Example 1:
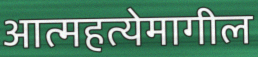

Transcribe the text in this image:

आत्महत्येमागील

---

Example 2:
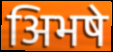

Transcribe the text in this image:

अिभषे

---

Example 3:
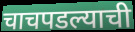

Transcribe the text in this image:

चाचपडल्याची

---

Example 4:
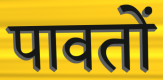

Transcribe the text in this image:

पावतों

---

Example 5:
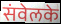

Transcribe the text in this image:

संवेलके